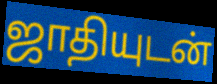
ஜாதியுடன்